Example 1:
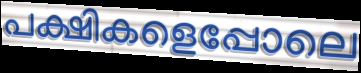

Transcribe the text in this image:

പക്ഷികളെപ്പോലെ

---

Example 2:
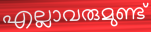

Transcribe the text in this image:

എല്ലാവരുമുണ്ട്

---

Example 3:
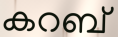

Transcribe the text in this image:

കറബ്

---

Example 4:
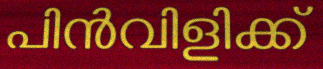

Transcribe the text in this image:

പിൻവിളിക്ക്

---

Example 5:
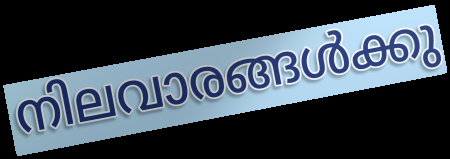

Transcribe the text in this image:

നിലവാരങ്ങൾക്കു